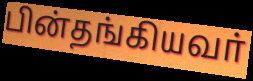
பின்தங்கியவர்